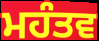
ਮਹੰਤਵ